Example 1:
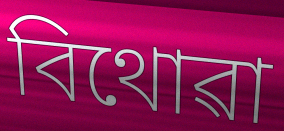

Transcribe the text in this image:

বিথোৱা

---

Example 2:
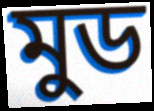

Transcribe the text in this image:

মুড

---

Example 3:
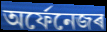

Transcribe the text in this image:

অৰ্ফেনেজৰ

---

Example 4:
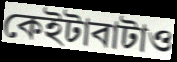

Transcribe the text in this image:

কেইটাবাটাও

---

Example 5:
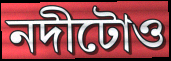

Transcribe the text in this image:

নদীটোও